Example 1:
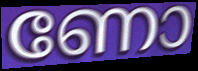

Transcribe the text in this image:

ണോ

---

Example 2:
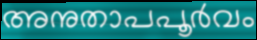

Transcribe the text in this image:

അനുതാപപൂർവം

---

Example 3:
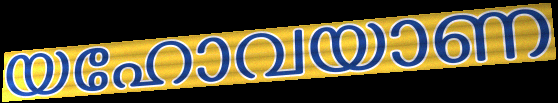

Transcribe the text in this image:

യഹോവയാണ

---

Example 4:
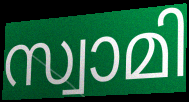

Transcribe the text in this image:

സ്വാമി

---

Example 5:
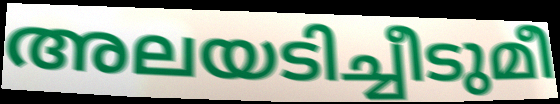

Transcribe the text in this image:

അലയടിച്ചീടുമീ